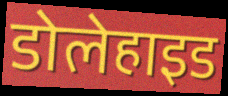
डोलेहाइड